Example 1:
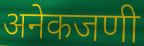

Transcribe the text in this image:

अनेकजणी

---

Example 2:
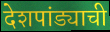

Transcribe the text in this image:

देशपांड्याची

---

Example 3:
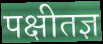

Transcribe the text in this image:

पक्षीतज्ञ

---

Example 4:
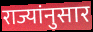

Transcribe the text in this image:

राज्यांनुसार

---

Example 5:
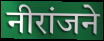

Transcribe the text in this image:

नीरांजने